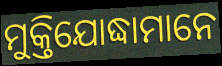
ମୁକ୍ତିଯୋଦ୍ଧାମାନେ